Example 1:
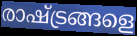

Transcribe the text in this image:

രാഷ്ട്രങ്ങളെ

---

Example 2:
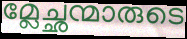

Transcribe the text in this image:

മ്ലേച്ഛന്മാരുടെ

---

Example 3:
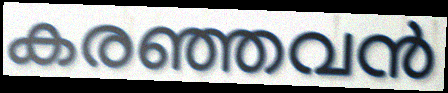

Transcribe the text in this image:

കരഞ്ഞവൻ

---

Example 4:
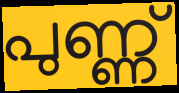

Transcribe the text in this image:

പുണ്ണ്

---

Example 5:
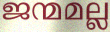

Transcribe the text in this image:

ജന്മമല്ല